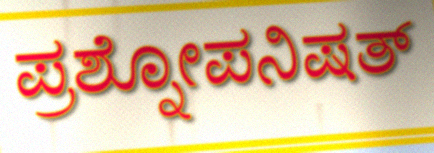
ಪ್ರಶ್ನೋಪನಿಷತ್